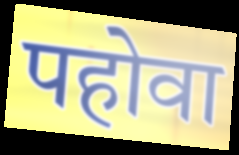
पहोवा